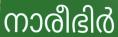
നാരീഭിർ